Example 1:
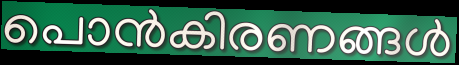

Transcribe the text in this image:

പൊൻകിരണങ്ങൾ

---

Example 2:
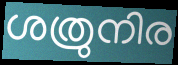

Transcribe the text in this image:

ശത്രുനിര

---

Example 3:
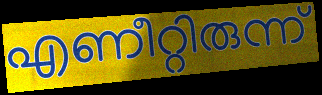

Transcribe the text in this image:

എണീറ്റിരുന്ന്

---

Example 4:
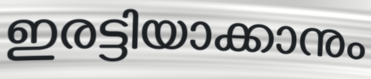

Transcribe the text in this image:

ഇരട്ടിയാക്കാനും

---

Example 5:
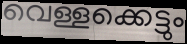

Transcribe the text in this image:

വെള്ളക്കെട്ടും